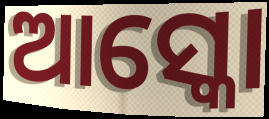
ଆସ୍କୋ